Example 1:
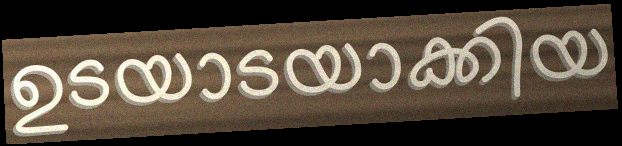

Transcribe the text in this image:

ഉടയാടയാക്കിയ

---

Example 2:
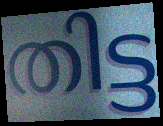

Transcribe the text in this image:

തിട്ട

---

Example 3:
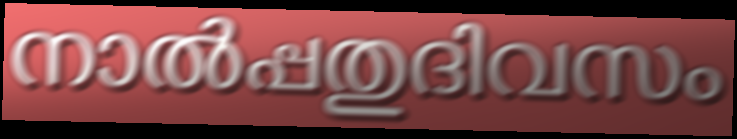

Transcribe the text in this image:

നാൽപ്പതുദിവസം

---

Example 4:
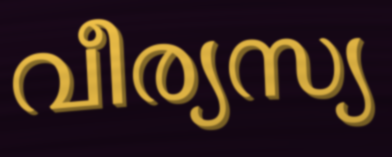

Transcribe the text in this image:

വീര്യസ്യ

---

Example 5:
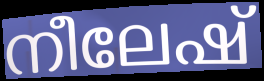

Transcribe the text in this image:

നീലേഷ്